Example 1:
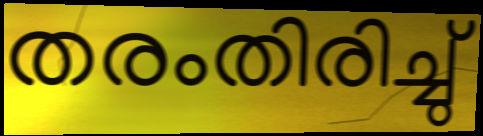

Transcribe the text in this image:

തരംതിരിച്ചു്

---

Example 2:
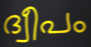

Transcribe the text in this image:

ദ്വീപം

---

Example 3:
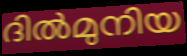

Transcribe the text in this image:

ദിൽമുനിയ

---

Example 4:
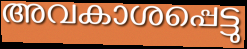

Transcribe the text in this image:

അവകാശപ്പെട്ടു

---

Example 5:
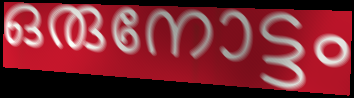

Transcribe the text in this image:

ഒരുനോട്ടം